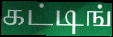
கட்டிங்